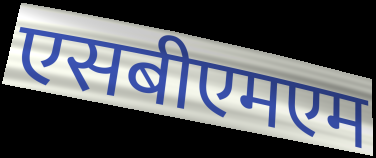
एसबीएमएम